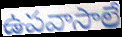
ఉపవాసాలే